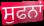
ਸੁਫਨਾਂ